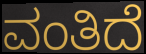
ವಂತಿದೆ